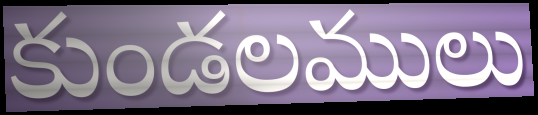
కుండలములు